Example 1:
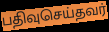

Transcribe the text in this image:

பதிவுசெய்தவர்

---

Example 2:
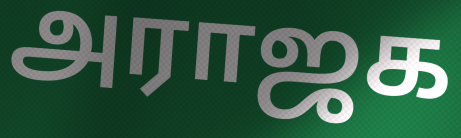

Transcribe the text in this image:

அராஜக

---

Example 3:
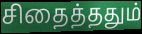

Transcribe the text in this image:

சிதைத்ததும்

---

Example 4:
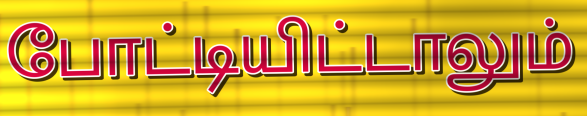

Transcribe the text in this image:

போட்டியிட்டாலும்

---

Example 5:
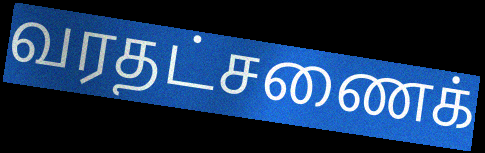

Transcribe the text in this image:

வரதட்சணைக்